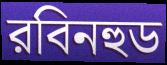
রবিনহুড